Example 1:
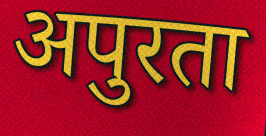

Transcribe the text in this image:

अपुरता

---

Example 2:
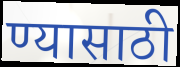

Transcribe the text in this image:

ण्यासाठी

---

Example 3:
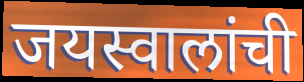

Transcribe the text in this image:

जयस्वालांची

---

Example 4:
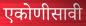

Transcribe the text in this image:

एकोणीसावी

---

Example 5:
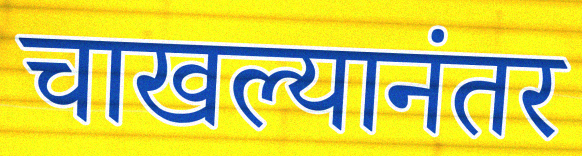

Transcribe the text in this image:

चाखल्यानंतर